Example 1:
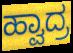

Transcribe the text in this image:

ಹ್ವಾದ್ರ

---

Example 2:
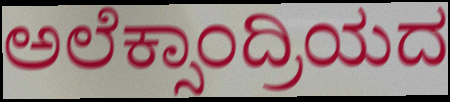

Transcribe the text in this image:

ಅಲೆಕ್ಸಾಂದ್ರಿಯದ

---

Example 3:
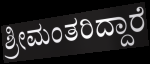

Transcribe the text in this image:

ಶ್ರೀಮಂತರಿದ್ದಾರೆ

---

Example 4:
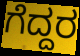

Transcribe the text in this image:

ಗೆದ್ದರ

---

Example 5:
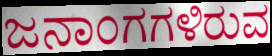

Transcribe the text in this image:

ಜನಾಂಗಗಳಿರುವ